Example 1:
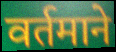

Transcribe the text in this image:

वर्तमाने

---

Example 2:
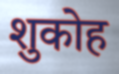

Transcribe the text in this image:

शुकोह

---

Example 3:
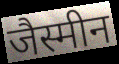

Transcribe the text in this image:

जैस्मीन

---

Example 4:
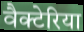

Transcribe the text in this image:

वैक्टेरिया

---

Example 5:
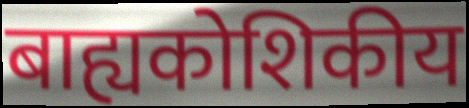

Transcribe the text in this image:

बाह्यकोशिकीय